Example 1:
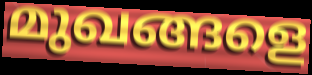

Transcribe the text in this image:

മുഖങ്ങളെ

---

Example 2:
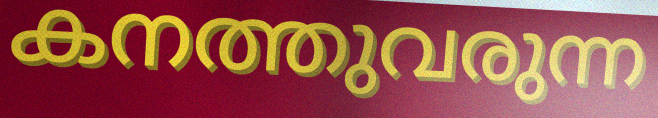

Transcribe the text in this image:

കനത്തുവരുന്ന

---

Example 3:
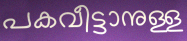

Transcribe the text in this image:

പകവീട്ടാനുള്ള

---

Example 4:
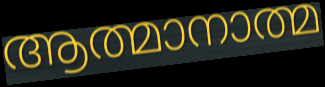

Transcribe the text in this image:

ആത്മാനാത്മ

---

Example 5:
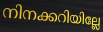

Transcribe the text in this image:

നിനക്കറിയില്ലേ